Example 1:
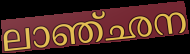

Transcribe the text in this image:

ലാഞ്ഛന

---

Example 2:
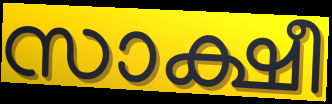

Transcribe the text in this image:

സാക്ഷീ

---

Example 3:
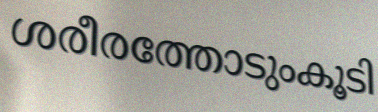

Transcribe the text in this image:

ശരീരത്തോടുംകൂടി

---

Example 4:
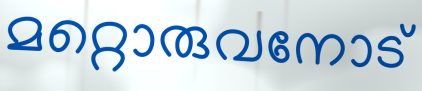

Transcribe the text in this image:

മറ്റൊരുവനോട്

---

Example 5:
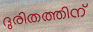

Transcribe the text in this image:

ദുരിതത്തിന്